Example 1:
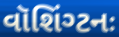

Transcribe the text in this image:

વૉશિંગ્ટનઃ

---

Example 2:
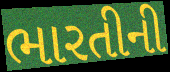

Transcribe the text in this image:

ભારતીની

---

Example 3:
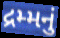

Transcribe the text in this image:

દ્રમ્મનું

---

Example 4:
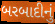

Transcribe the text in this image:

બરબાદીનું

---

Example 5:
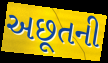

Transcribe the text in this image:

અછૂતની